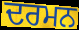
ਦਰਮਨ